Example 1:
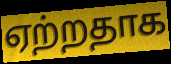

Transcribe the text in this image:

ஏற்றதாக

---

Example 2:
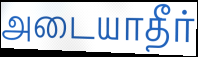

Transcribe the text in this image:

அடையாதீர்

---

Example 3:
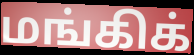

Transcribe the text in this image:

மங்கிக்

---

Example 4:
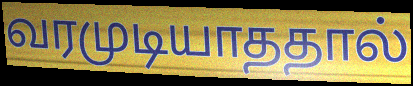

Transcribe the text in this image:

வரமுடியாததால்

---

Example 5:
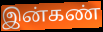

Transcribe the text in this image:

இன்கண்